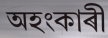
অহংকাৰী